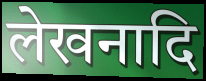
लेखनादि